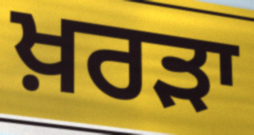
ਖ਼ਰੜਾ